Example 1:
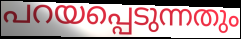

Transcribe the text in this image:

പറയപ്പെടുന്നതും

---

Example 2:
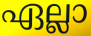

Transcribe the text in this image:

ഏല്ലാ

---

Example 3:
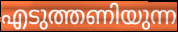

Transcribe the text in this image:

എടുത്തണിയുന്ന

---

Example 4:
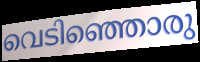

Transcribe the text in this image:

വെടിഞ്ഞൊരു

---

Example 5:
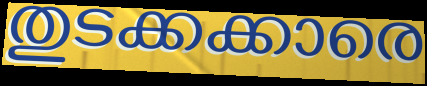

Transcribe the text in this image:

തുടക്കക്കാരെ